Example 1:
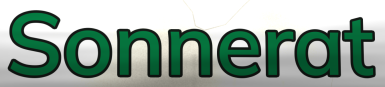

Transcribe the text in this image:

Sonnerat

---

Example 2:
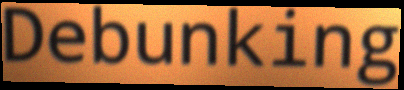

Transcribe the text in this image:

Debunking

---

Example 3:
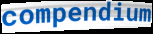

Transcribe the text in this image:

compendium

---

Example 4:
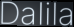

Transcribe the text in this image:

Dalila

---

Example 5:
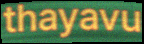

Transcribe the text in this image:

thayavu